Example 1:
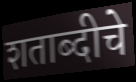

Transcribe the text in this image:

शताब्दीचे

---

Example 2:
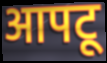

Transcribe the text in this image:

आपटू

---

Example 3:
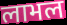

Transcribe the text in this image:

लाभल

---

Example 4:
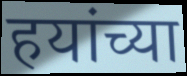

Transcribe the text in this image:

हयांच्या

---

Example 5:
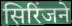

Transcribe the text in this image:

सिरिंजने